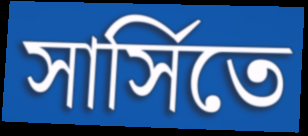
সার্সিতে